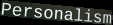
Personalism